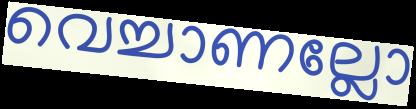
വെച്ചാണല്ലോ